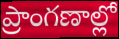
ప్రాంగణాల్లో